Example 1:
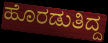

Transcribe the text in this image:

ಹೊರಡುತಿದ್ದ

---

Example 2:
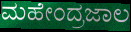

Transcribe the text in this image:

ಮಹೇಂದ್ರಜಾಲ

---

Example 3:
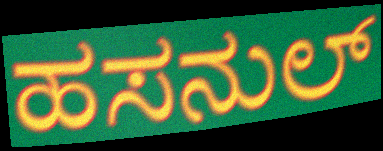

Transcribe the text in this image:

ಹಸನುಲ್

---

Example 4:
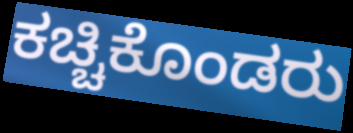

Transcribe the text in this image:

ಕಚ್ಚಿಕೊಂಡರು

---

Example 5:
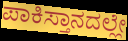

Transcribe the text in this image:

ಪಾಕಿಸ್ತಾನದಲ್ಲೇ